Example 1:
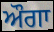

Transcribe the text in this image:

ਔਗਾ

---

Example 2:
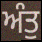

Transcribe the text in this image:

ਅੰਤੁ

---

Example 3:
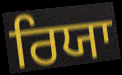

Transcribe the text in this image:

ਰਿਯਾ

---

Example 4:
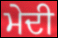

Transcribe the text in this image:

ਮੇਦੀ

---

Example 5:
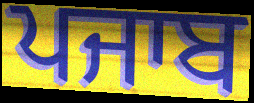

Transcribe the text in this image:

ਪਜਾਬ